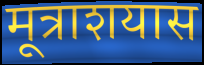
मूत्राशयास